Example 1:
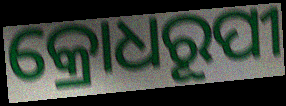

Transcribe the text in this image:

କ୍ରୋଧରୂପୀ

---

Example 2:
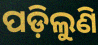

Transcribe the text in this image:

ପଡ଼ିଲୁଣି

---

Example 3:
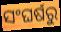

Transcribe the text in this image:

ସଂଘର୍ଷରୁ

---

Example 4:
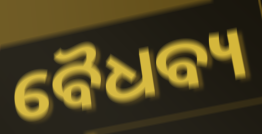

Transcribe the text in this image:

ବୈଧବ୍ୟ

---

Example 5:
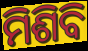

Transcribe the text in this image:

ମିଶିବି